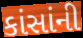
કાંસાંની